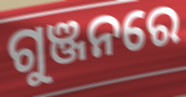
ଗୁଞ୍ଜନରେ